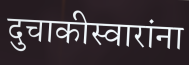
दुचाकीस्वारांना